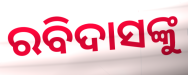
ରବିଦାସଙ୍କୁ